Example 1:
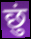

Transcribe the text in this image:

छुं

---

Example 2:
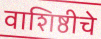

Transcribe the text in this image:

वाशिष्ठीचे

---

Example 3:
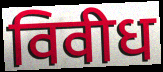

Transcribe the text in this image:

विवीध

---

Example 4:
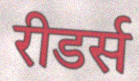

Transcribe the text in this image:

रीडर्स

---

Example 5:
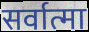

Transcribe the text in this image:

सर्वात्मा